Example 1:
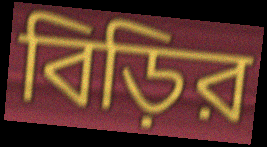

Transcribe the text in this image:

বিড়ির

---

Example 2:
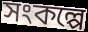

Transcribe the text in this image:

সংকল্পে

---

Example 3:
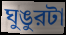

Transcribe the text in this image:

ঘুঙুরটা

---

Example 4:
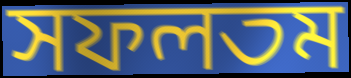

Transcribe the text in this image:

সফলতম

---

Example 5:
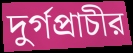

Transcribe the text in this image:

দুর্গপ্রাচীর